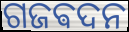
ଗଜଵଦନ